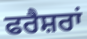
ਫਰੈਸ਼ਰਾਂ